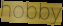
hobby